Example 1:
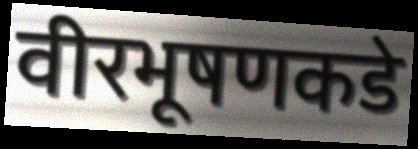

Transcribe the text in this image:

वीरभूषणकडे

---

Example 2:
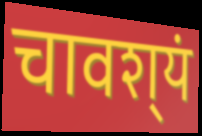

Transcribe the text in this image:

चावश्यं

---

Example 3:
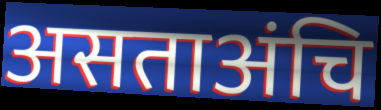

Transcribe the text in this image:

असताअंचि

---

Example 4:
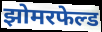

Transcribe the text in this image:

झोमरफेल्ड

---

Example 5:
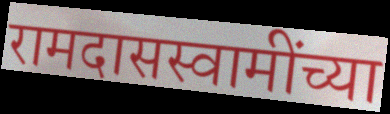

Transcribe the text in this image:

रामदासस्वामींच्या